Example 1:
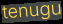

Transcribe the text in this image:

tenugu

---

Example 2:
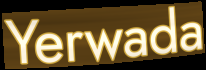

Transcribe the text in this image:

Yerwada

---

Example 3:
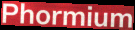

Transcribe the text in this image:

Phormium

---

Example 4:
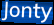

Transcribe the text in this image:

Jonty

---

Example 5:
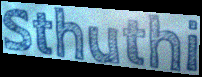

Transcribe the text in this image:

Sthuthi